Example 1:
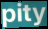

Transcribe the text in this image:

pity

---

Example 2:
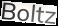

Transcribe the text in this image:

Boltz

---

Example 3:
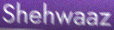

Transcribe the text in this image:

Shehwaaz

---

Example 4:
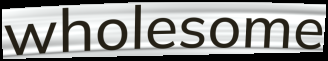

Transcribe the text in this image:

wholesome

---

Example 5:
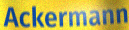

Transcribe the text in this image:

Ackermann